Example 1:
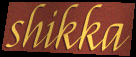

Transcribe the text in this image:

shikka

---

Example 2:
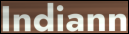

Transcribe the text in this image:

Indiann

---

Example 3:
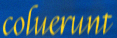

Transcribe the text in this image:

coluerunt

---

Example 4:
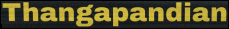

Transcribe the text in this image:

Thangapandian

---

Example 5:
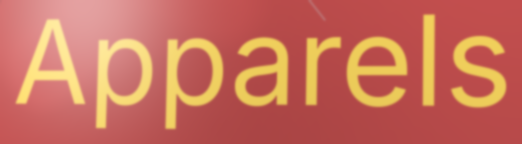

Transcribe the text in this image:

Apparels